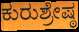
ಕುರುಶ್ರೇಷ್ಠ